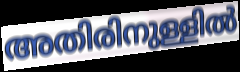
അതിരിനുള്ളിൽ